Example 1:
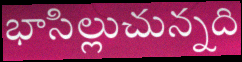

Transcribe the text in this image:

భాసిల్లుచున్నది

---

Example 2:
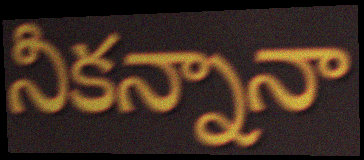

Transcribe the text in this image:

నీకన్నానా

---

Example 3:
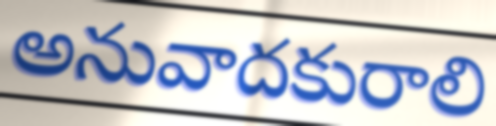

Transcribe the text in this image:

అనువాదకురాలి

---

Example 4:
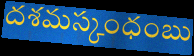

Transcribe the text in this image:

దశమస్కంధంబు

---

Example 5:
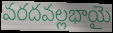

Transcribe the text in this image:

వరదవల్లభాయై